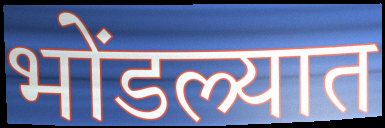
भोंडल्यात